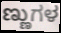
ಣ್ಣುಗಳ